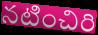
నటించిరి